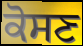
ਕੋਸਣ